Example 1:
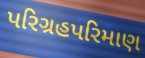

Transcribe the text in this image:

પરિગ્રહપરિમાણ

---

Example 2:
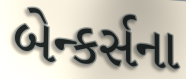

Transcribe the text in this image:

બેન્કર્સના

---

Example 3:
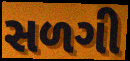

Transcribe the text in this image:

સળગી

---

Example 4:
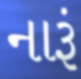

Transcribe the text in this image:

નારૂં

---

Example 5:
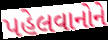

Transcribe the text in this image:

પહેલવાનોને